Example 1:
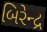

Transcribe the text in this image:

બિરેન્દ્ર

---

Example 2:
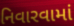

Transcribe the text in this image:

નિવારવામાં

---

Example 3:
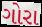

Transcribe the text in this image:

ગોરા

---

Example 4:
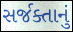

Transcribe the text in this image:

સર્જક્તાનું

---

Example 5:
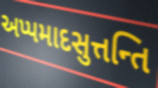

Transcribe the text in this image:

અપ્પમાદસુત્તન્તિ